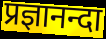
प्रज्ञानन्दा